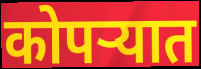
कोपऱ्यात